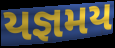
યજ્ઞમય